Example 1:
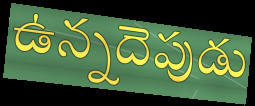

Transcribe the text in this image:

ఉన్నదెపుడు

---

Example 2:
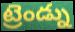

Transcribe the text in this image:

ట్రెండ్ను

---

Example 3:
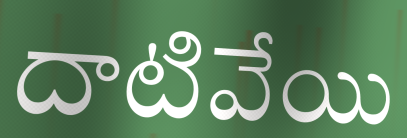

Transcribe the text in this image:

దాటివేయి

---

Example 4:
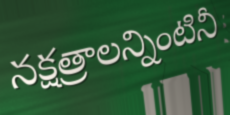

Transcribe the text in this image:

నక్షత్రాలన్నింటినీ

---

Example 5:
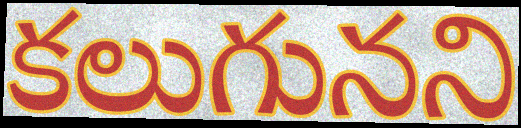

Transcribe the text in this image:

కలుగునని